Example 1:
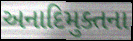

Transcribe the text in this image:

અનાદિમુક્તના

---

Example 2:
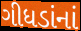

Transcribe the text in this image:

ગીધડાંનાં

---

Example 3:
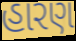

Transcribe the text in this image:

હારણ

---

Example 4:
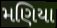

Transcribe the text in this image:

મણિયા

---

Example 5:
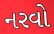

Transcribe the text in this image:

નરવો